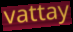
vattay